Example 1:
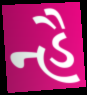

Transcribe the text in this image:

ન્હૈ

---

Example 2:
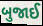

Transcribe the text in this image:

બુજાઈ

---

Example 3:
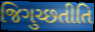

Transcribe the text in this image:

જિગુચ્છતીતિ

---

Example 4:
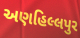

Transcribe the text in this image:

અણહિલ્લપુર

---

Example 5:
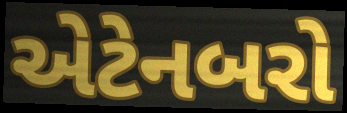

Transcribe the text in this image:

એટેનબરો